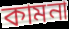
কামনা